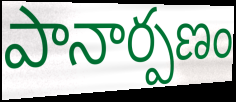
పానార్పణం